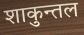
शाकुन्तल